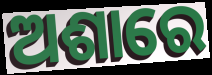
ଅଶାରେ